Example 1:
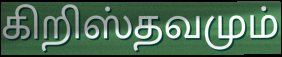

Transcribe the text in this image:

கிறிஸ்தவமும்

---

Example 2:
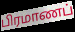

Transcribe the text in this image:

பிரமாணப்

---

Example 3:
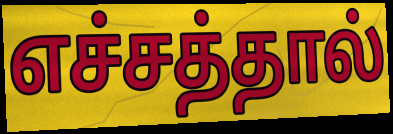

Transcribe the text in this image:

எச்சத்தால்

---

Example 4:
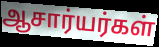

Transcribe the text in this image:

ஆசார்யர்கள்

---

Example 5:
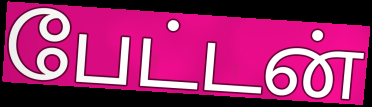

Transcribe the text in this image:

பேட்டன்